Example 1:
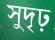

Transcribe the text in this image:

সুদৃঢ়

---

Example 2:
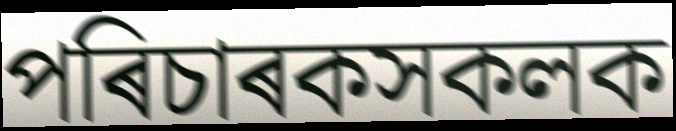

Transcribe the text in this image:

পৰিচাৰকসকলক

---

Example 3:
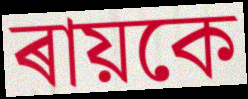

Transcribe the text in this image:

ৰায়কে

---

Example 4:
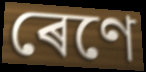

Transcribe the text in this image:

ৰেণে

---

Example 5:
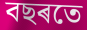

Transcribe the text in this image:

বছৰতে